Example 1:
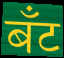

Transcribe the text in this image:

बँट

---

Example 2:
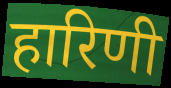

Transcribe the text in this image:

हारिणी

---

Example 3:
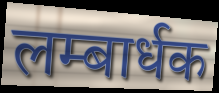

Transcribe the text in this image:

लम्बार्धक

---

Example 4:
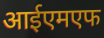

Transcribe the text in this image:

आईएमएफ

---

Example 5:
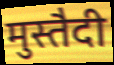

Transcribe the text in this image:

मुस्तैदी